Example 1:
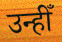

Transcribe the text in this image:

उन्हीँ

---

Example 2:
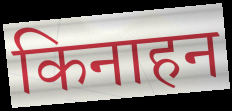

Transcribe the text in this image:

किनाहन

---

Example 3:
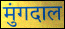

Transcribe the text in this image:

मुंगदाल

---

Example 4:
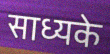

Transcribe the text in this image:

साध्यके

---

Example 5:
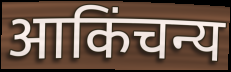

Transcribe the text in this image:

आकिंचन्य